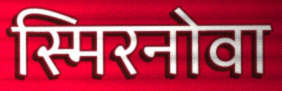
स्मिरनोवा